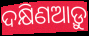
ଦକ୍ଷିଣଆଡ଼ୁ